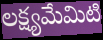
లక్ష్యమేమిటి